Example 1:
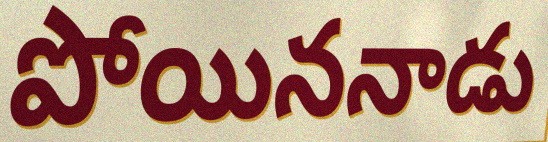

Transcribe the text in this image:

పోయిననాడు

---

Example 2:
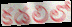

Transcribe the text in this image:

కడలిలో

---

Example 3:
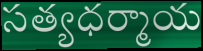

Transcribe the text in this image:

సత్యధర్మాయ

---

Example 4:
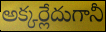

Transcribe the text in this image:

అక్కర్లేదుగానీ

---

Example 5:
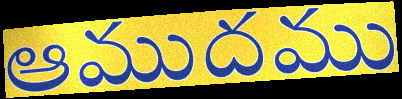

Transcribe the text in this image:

ఆముదము